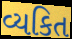
વ્યકિત